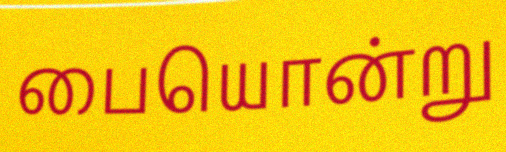
பையொன்று